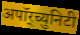
अपॉर्च्युनिटी